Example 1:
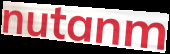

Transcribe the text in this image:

nutanm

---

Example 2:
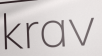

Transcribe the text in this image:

krav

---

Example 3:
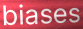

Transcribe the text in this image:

biases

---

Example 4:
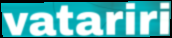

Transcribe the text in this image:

vatariri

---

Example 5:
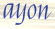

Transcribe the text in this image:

ayon